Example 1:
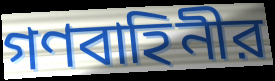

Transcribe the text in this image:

গণবাহিনীর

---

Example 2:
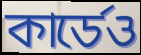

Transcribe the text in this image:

কার্ডেও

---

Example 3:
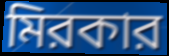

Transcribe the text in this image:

মিরকার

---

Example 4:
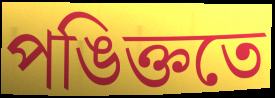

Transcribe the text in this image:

পঙিক্ততে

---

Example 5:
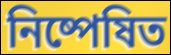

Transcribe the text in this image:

নিষ্পেষিত